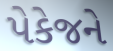
પેકેજને